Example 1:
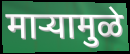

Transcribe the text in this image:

माऱ्यामुळे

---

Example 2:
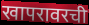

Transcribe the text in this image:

खापरावरची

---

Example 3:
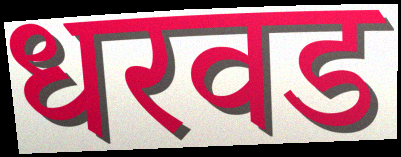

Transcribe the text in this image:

धरवड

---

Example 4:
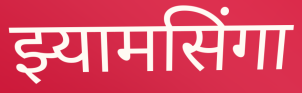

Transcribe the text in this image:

झ्यामसिंगा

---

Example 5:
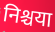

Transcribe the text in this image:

निश्चया